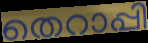
തെറാപ്പി